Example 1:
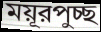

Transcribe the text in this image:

ময়ূরপুচ্ছ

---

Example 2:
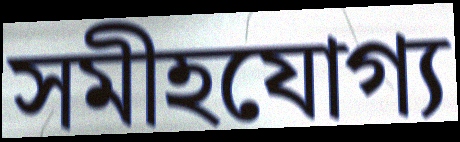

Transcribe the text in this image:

সমীহযোগ্য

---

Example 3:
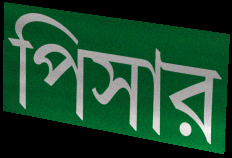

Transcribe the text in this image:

পিসার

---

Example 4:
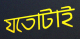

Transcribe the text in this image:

যতোটাই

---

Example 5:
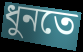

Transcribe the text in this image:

ধুনতে